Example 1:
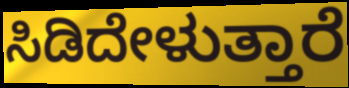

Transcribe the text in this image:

ಸಿಡಿದೇಳುತ್ತಾರೆ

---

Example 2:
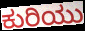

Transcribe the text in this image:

ಕುರಿಯು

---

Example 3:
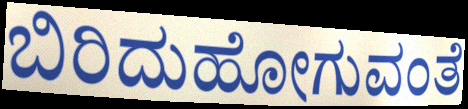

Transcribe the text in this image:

ಬಿರಿದುಹೋಗುವಂತೆ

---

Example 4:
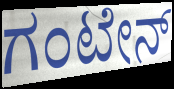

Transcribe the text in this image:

ಗಂಟೇನ್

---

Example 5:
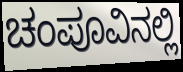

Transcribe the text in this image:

ಚಂಪೂವಿನಲ್ಲಿ